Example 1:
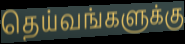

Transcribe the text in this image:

தெய்வங்களுக்கு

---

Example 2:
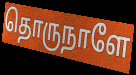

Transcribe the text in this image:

தொருநாளே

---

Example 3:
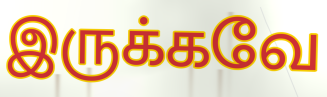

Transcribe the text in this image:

இருக்கவே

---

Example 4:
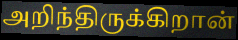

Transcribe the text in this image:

அறிந்திருக்கிறான்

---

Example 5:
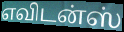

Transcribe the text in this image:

எவிடன்ஸ்